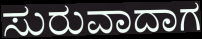
ಸುರುವಾದಾಗ